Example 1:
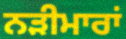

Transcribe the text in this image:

ਨੜੀਮਾਰਾਂ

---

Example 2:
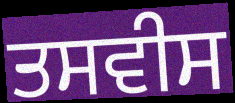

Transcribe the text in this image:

ਤਸਵੀਸ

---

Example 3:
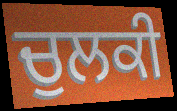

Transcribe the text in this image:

ਚੁਲਕੀ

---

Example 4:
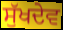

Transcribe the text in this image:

ਸੁੱਖਦੇਵ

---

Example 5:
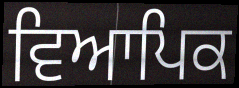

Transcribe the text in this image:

ਵਿਆਪਿਕ